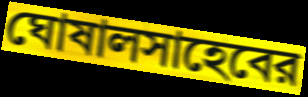
ঘোষালসাহেবের